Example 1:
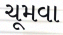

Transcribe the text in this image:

ચૂમવા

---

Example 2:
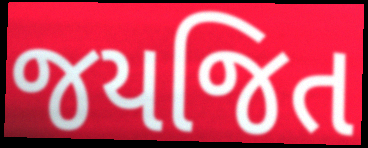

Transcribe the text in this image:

જયજિત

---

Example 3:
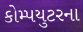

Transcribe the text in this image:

કોમ્પયુટરના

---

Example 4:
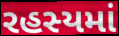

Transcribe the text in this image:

રહસ્યમાં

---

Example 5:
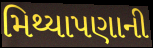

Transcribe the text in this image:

મિથ્યાપણાની